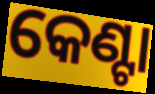
କେଣ୍ଟା